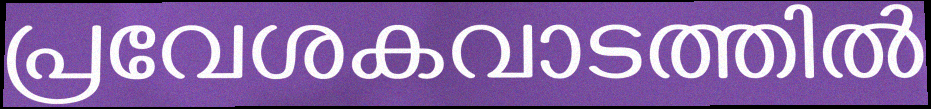
പ്രവേശകവാടത്തിൽ